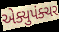
એક્યુપંક્ચર